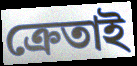
ক্ৰেতাই